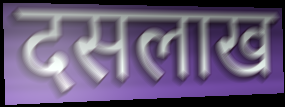
दसलाख